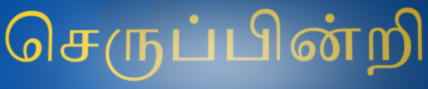
செருப்பின்றி